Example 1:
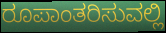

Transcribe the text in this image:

ರೂಪಾಂತರಿಸುವಲ್ಲಿ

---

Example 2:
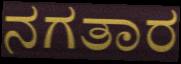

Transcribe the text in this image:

ನಗತಾರ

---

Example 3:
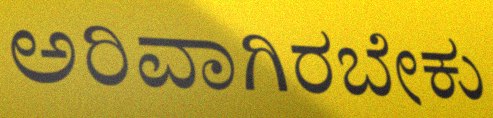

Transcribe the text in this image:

ಅರಿವಾಗಿರಬೇಕು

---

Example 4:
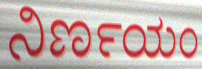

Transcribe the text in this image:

ನಿರ್ಣಯಂ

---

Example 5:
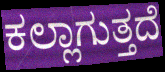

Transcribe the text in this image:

ಕಲ್ಲಾಗುತ್ತದೆ